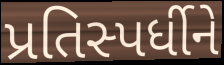
પ્રતિસ્પર્ધીને